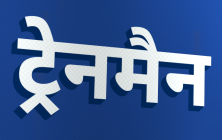
ट्रेनमैन